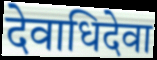
देवाधिदेवा